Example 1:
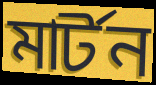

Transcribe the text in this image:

মার্টন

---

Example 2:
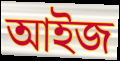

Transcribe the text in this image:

আইজ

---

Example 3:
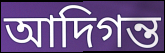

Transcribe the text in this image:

আদিগন্ত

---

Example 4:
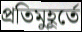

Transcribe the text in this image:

প্রতিমুহূর্তে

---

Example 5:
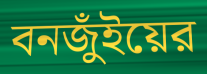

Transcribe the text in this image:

বনজুঁইয়ের